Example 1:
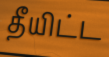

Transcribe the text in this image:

தீயிட்ட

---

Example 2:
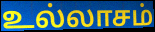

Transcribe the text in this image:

உல்லாசம்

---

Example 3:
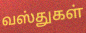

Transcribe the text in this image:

வஸ்துகள்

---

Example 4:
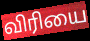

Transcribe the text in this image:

விரியை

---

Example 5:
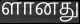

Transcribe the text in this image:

ளானது